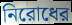
নিরোধের